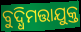
ବୁଦ୍ଧିମତ୍ତାଯୁକ୍ତ